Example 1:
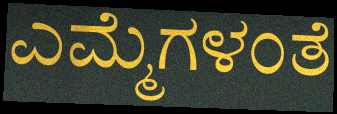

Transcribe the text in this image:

ಎಮ್ಮೆಗಳಂತೆ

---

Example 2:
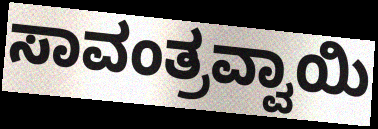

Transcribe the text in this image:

ಸಾವಂತ್ರವ್ವಾಯಿ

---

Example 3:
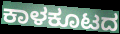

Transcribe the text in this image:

ಕಾಳಕೂಟದ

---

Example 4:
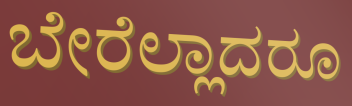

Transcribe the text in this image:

ಬೇರೆಲ್ಲಾದರೂ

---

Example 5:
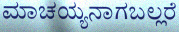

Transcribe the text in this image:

ಮಾಚಯ್ಯನಾಗಬಲ್ಲರೆ